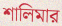
শালিমার